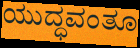
ಯುದ್ಧವಂತೂ